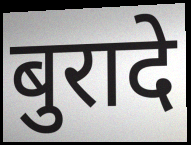
बुरादे